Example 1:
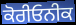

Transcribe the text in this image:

ਕੋਰੀਓਨੀਕ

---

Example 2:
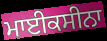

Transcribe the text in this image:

ਮਾਈਕਸੀਨਾ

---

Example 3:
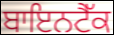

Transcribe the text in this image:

ਬਾਇਨਟੈੱਕ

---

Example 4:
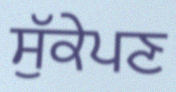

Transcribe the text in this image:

ਸੁੱਕੇਪਣ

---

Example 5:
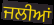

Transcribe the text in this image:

ਜਲੀਆਂ